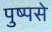
पुष्पसे